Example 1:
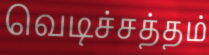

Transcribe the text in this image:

வெடிச்சத்தம்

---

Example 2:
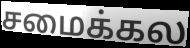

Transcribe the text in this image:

சமைக்கல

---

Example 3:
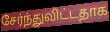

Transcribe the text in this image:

சேர்ந்துவிட்டதாக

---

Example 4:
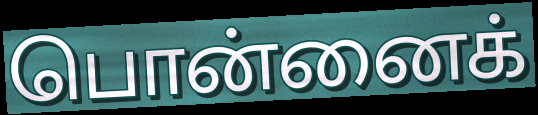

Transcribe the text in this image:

பொன்னைக்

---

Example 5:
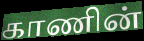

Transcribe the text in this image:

காணின்